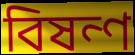
বিষন্ণ